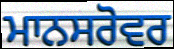
ਮਾਨਸਰੋਵਰ